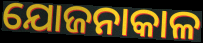
ଯୋଜନାକାଳ